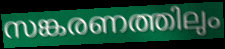
സങ്കരണത്തിലും